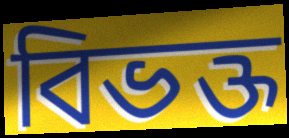
বিভক্ত